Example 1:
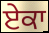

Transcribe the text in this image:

ਏਕਾ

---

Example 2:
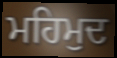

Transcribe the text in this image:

ਮਹਿਮੁਦ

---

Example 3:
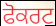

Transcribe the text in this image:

ਫੋਕਰਟ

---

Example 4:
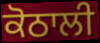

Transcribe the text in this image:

ਕੋਠਾਲੀ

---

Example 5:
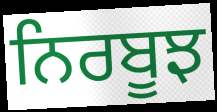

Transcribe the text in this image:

ਨਿਰਬੂਝ